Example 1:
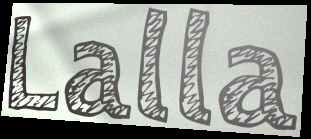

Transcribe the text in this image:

Lalla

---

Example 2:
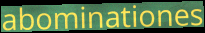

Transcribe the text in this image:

abominationes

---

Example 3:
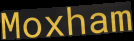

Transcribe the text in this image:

Moxham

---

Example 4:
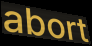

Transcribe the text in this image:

abort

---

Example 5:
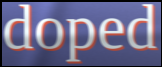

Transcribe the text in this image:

doped